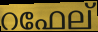
റഫേല്